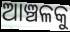
ଆଞ୍ଚଳକୁ